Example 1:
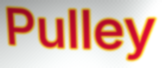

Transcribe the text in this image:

Pulley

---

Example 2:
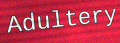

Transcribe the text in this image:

Adultery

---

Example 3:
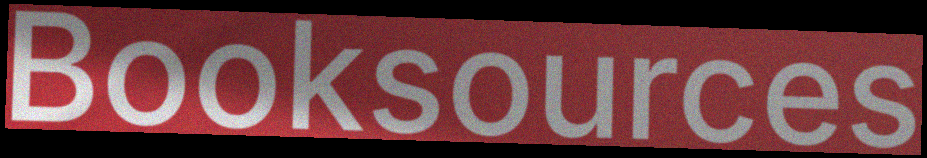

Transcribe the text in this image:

Booksources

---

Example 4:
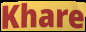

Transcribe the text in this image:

Khare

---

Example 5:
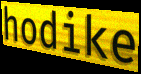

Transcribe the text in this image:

hodike